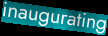
inaugurating